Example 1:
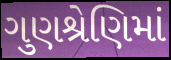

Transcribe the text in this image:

ગુણશ્રેણિમાં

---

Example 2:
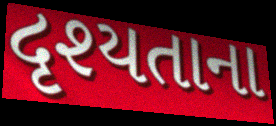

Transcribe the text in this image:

દૃશ્યતાના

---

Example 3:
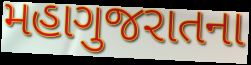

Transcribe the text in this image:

મહાગુજરાતના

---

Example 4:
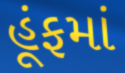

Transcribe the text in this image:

હૂંફમાં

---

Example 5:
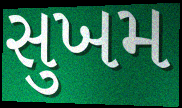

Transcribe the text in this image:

સુખમ